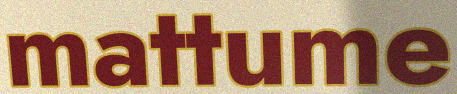
mattume